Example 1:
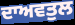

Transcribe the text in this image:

ਦਾਅਵਤੁਲ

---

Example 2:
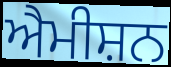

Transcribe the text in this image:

ਐਮੀਸ਼ਨ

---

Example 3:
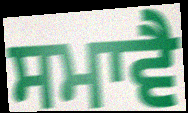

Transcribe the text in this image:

ਸਮਾਵੈ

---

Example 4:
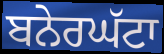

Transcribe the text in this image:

ਬਨੇਰਘੱਟਾ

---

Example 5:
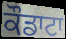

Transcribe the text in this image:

ਕੌਡਾਟਾ